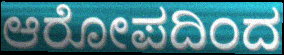
ಆರೋಪದಿಂದ